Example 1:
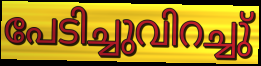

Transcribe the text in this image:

പേടിച്ചുവിറച്ചു്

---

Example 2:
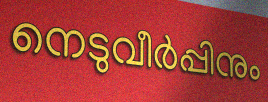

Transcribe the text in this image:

നെടുവീർപ്പിനും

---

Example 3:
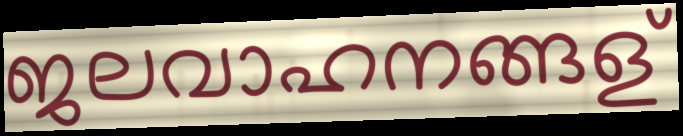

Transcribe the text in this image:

ജലവാഹനങ്ങള്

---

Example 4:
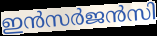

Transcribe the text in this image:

ഇൻസർജൻസി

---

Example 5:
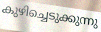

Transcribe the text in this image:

കുഴിച്ചെടുക്കുന്നു